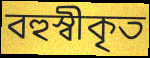
বহুস্বীকৃত